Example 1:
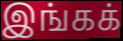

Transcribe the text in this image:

இங்கக்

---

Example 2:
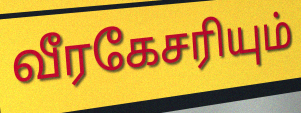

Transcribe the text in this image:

வீரகேசரியும்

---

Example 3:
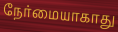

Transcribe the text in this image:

நேர்மையாகாது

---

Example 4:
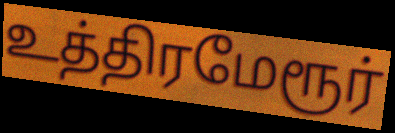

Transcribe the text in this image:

உத்திரமேரூர்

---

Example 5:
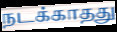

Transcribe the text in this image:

நடக்காதது